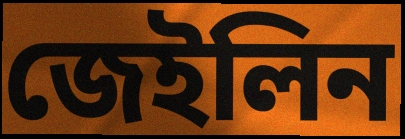
জেইলিন